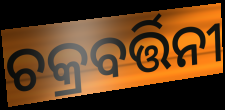
ଚକ୍ରବର୍ତ୍ତିନୀ